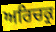
ਅਰਿਚਕ੍ਰ